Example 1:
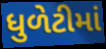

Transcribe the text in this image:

ધુળેટીમાં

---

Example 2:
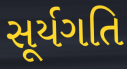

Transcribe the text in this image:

સૂર્યગતિ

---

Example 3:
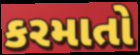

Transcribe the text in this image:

કરમાતો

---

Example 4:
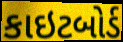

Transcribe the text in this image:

કાઇટબોર્ડ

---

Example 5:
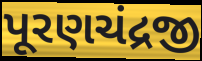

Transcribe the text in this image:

પૂરણચંદ્રજી